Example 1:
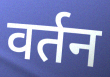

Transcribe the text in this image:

वर्तन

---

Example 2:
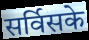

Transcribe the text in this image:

सर्विसके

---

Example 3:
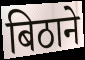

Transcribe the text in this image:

बिठाने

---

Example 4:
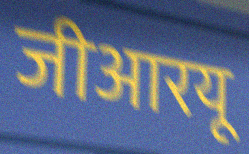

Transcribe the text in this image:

जीआरयू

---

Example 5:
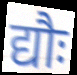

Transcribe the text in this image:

द्यौः